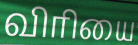
விரியை